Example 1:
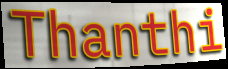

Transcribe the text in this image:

Thanthi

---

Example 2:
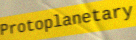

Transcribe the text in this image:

Protoplanetary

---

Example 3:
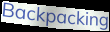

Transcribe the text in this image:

Backpacking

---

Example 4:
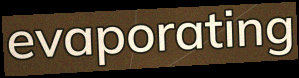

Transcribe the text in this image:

evaporating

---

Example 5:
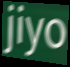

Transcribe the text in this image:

jiyo